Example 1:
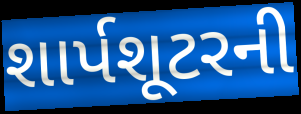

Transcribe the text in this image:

શાર્પશૂટરની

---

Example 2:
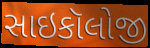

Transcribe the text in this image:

સાઇકૉલોજી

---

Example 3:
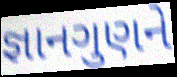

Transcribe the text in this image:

જ્ઞાનગુણને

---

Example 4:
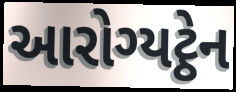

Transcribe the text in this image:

આરોગ્યટ્ઠેન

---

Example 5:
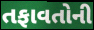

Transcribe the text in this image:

તફાવતોની